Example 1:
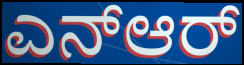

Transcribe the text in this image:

ಎನ್ಆರ್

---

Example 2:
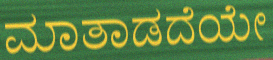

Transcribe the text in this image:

ಮಾತಾಡದೆಯೇ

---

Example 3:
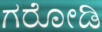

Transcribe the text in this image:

ಗರೋಡಿ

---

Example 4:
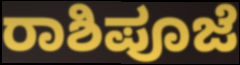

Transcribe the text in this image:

ರಾಶಿಪೂಜೆ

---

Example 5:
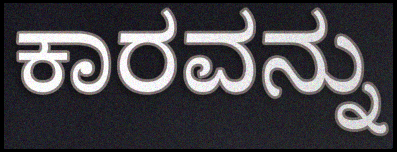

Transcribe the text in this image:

ಕಾರವನ್ನು